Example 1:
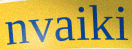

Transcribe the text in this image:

nvaiki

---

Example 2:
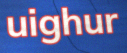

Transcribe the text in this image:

uighur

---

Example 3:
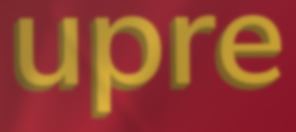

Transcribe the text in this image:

upre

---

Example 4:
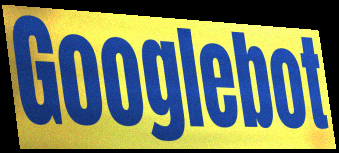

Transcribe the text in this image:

Googlebot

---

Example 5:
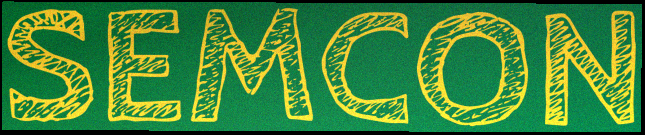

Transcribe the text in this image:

SEMCON